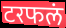
टरफलं